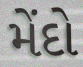
મેંદો